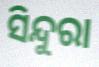
ସିନ୍ଦୁରା